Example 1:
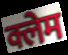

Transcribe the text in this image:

क्लेम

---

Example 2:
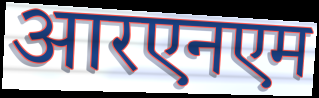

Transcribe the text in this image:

आरएनएम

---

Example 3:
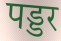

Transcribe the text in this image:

पड्डर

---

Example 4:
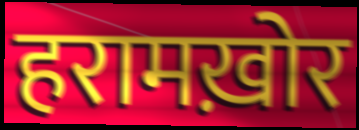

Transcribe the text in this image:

हरामख़ोर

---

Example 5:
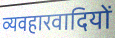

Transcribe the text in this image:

व्यवहारवादियों